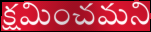
క్షమించమని